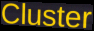
Cluster